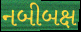
નબીબક્ષ